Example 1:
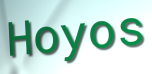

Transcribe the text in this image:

Hoyos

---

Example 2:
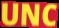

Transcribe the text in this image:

UNC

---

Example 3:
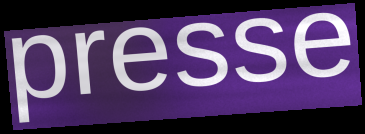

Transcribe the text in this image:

presse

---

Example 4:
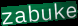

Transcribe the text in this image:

zabuke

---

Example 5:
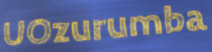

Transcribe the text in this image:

UOzurumba